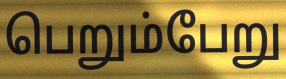
பெறும்பேறு